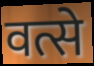
वत्से